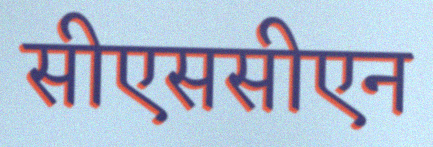
सीएससीएन